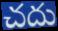
చదు